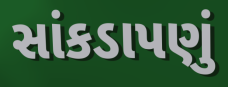
સાંકડાપણું